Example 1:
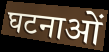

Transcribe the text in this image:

घटनाओं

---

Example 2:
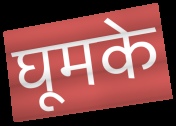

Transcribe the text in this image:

घूमके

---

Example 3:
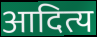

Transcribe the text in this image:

आदित्‍य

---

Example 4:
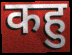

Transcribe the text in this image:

कहु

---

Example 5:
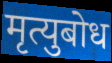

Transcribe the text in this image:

मृत्युबोध